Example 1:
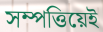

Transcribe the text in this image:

সম্পত্তিয়েই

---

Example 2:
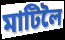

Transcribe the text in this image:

মাটিলৈ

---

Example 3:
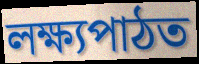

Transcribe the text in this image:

লক্ষ্যপাঠত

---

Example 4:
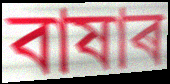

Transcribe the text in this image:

বাষাৰ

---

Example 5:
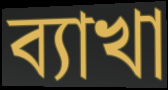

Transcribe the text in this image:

ব্যাখা